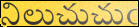
నిలుచుచుఁ